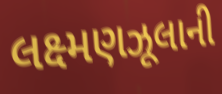
લક્ષ્મણઝૂલાની